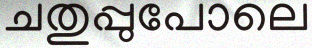
ചതുപ്പുപോലെ